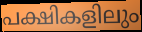
പക്ഷികളിലും